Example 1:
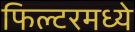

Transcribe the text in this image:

फिल्टरमध्ये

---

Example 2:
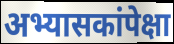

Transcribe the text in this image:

अभ्यासकांपेक्षा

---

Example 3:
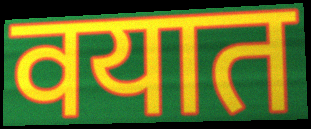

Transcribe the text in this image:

वयात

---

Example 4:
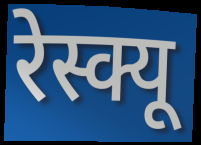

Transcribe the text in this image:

रेस्क्यू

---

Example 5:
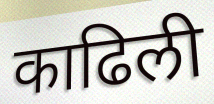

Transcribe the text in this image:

काढिली